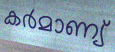
കർമാണ്യ്